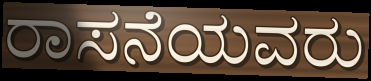
ರಾಸನೆಯವರು